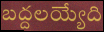
బద్దలయ్యేది